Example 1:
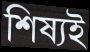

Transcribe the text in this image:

শিষ্যই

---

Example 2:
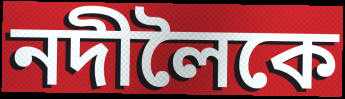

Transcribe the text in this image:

নদীলৈকে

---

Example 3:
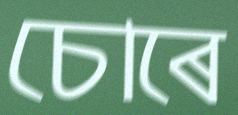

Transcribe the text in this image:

চোৰে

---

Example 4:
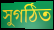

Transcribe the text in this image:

সুগঠিত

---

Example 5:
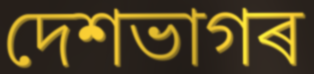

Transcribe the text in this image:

দেশভাগৰ